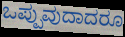
ಒಪ್ಪುವುದಾದರೂ